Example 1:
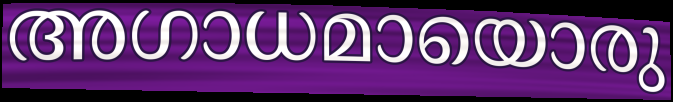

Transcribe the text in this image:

അഗാധമായൊരു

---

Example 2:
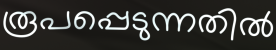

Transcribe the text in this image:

രൂപപ്പെടുന്നതിൽ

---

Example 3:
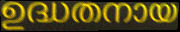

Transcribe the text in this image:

ഉദ്ധതനായ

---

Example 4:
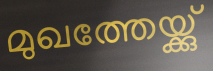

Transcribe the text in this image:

മുഖത്തേയ്ക്കു്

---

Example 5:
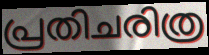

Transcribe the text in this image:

പ്രതിചരിത്ര